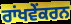
ਰਾਂਖਵੇਂਕਰਨ